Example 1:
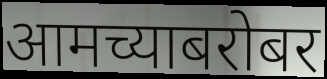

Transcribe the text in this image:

आमच्याबरोबर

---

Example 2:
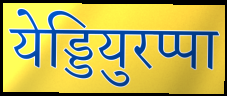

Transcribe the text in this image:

येड्डियुरप्पा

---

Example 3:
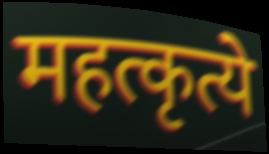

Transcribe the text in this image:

महत्कृत्ये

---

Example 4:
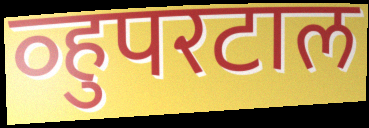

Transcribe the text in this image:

व्हुपरटाल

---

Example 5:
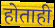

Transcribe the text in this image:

होताही